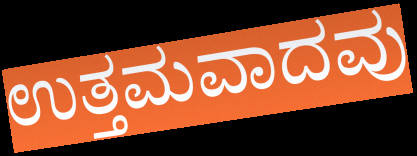
ಉತ್ತಮವಾದವು